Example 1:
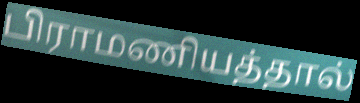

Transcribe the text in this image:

பிராமணியத்தால்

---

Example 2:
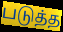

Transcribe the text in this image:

படுத்த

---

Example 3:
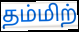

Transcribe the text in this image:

தம்மிற்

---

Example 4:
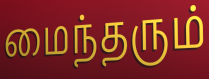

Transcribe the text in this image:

மைந்தரும்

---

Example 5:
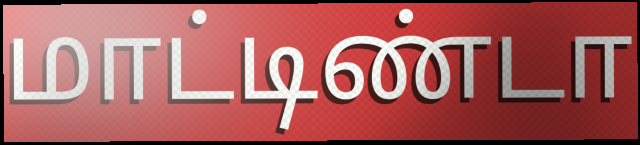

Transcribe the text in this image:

மாட்டிண்டா